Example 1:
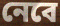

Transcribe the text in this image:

নেবে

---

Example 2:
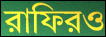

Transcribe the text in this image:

রাফিরও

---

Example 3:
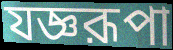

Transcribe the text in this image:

যজ্ঞরূপা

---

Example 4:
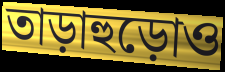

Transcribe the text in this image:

তাড়াহুড়োও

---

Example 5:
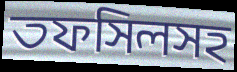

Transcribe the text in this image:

তফসিলসহ